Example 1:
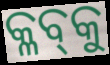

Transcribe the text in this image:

କ୍ଳବ୍‍କୁ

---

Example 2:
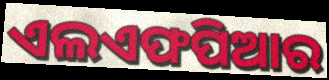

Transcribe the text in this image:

ଏଲଏଫପିଆର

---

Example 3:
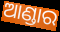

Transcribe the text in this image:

ଆଣ୍ଡାର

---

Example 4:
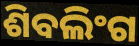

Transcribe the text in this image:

ଶିବଲିଂଗ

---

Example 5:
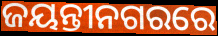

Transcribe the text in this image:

ଜୟନ୍ତୀନଗରରେ